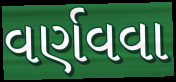
વર્ણવવા